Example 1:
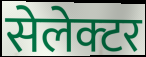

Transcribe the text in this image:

सेलेक्‍टर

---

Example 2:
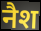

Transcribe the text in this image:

नैश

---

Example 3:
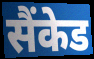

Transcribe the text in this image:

सैंकेड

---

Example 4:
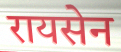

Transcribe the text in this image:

रायसेन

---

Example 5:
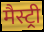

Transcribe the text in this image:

मैस्ट्री